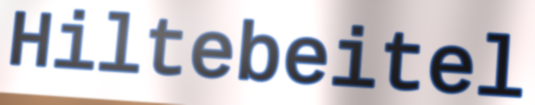
Hiltebeitel